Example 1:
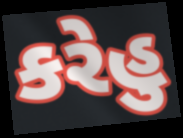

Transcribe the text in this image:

કરેહુ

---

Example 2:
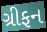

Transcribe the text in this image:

ગ્રીફન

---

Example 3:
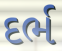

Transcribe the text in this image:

દર્ભ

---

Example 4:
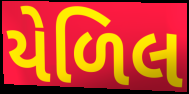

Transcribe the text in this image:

યેળિલ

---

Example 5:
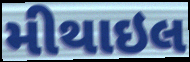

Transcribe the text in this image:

મીથાઇલ